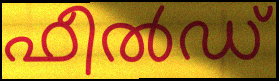
ഫീൽഡ്